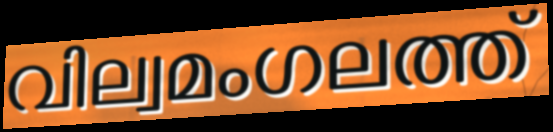
വില്വമംഗലത്ത്